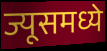
ज्यूसमध्ये